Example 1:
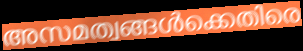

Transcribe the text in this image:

അസമത്വങ്ങൾക്കെതിരെ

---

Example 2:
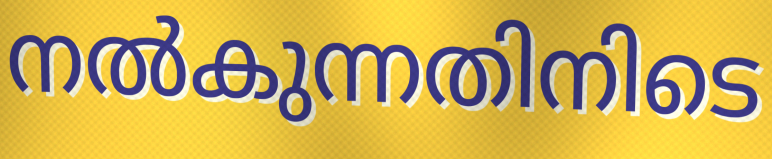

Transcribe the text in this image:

നൽകുന്നതിനിടെ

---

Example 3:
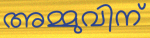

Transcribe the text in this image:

അമ്മുവിന്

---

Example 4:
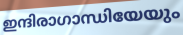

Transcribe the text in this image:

ഇന്ദിരാഗാന്ധിയേയും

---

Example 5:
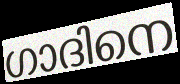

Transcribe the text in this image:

ഗാദിനെ